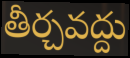
తీర్చవద్దు